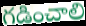
గడించాలి